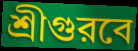
শ্রীগুরবে